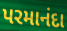
પરમાનંદા